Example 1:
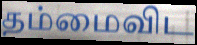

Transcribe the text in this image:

தம்மைவிட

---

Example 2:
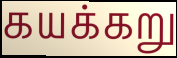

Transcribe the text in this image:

கயக்கறு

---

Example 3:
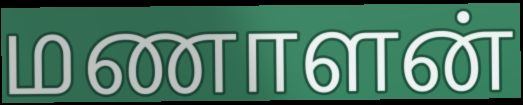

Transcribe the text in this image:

மணாளன்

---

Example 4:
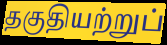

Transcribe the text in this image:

தகுதியற்றுப்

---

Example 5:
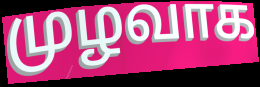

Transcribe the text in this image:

முழவாக